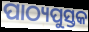
ପାଠ୍ୟପୁସ୍ତକ